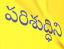
పరిశుద్ధిని